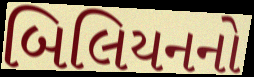
બિલિયનનો